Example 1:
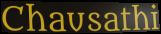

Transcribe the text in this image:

Chausathi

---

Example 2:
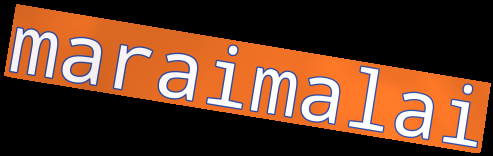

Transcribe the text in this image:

maraimalai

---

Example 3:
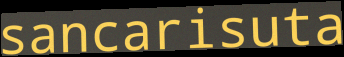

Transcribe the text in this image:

sancarisuta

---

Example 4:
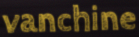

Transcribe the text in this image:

vanchine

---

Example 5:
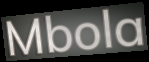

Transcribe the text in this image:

Mbola